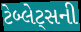
ટેબ્લેટ્સની